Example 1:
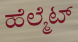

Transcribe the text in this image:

ಹೆಲ್ಮೆಟ್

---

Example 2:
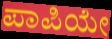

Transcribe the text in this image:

ಪಾಪಿಯೇ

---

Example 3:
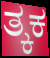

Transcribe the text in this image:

ತ್ಕಕ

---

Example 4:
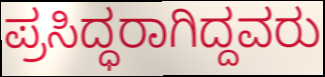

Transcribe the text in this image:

ಪ್ರಸಿದ್ಧರಾಗಿದ್ದವರು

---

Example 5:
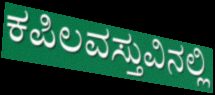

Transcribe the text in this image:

ಕಪಿಲವಸ್ತುವಿನಲ್ಲಿ